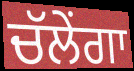
ਚੱਲੇਂਗਾ